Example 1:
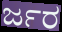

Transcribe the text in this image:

ರ್ಜರ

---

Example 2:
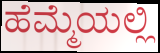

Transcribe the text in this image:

ಹೆಮ್ಮೆಯಲ್ಲಿ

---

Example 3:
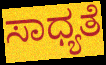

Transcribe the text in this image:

ಸಾಧ್ಯತೆ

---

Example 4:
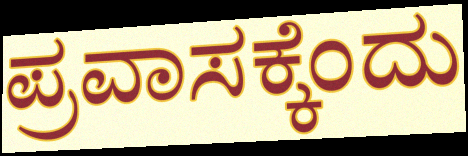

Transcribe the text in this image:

ಪ್ರವಾಸಕ್ಕೆಂದು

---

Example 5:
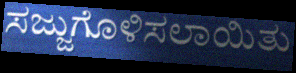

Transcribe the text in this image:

ಸಜ್ಜುಗೊಳಿಸಲಾಯಿತು